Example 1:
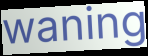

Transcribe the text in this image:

waning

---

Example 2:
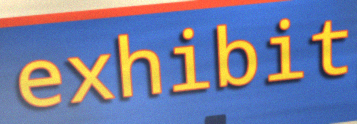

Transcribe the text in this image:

exhibit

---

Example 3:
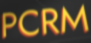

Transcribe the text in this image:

PCRM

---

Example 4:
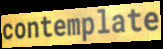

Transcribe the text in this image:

contemplate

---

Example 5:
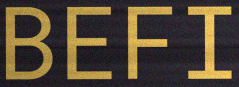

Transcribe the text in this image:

BEFI